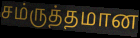
சம்ருத்தமான